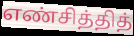
எண்சித்தித்